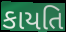
કાયતિ